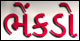
ભેંકડો